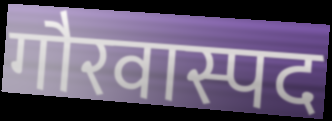
गौरवास्पद